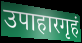
उपाहारगृहं